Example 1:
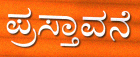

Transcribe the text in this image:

ಪ್ರಸ್ತಾವನೆ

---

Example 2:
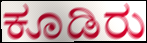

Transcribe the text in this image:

ಕೂಡಿರು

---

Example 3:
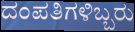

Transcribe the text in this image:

ದಂಪತಿಗಳಿಬ್ಬರು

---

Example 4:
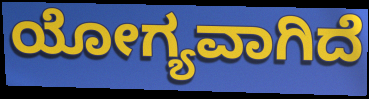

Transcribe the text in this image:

ಯೋಗ್ಯವಾಗಿದೆ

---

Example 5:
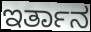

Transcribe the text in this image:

ಇರ್ತಾನ